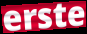
erste